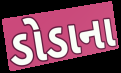
ડોડાના